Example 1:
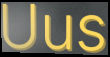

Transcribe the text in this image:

Uus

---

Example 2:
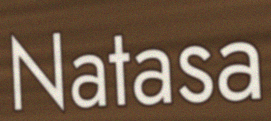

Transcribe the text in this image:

Natasa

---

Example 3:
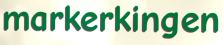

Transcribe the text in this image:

markerkingen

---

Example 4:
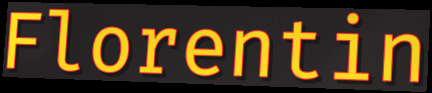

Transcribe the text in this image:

Florentin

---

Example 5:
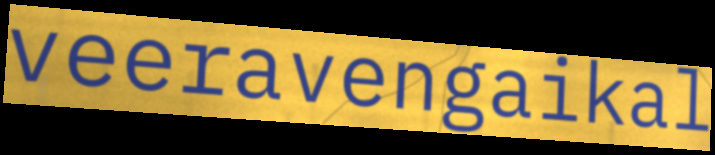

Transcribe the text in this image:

veeravengaikal